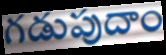
గడుపుదాం